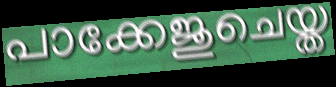
പാക്കേജുചെയ്ത